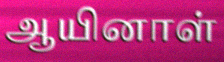
ஆயினாள்